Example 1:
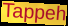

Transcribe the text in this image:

Tappeh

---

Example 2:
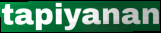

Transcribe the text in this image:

tapiyanan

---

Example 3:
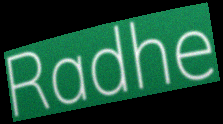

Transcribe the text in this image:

Radhe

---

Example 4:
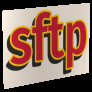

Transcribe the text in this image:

sftp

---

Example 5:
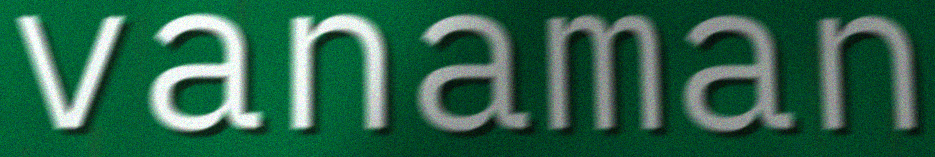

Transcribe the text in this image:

vanaman